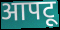
आपटू